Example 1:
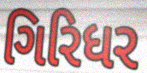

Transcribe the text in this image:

ગિરિધર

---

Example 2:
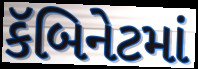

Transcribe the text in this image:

કૅબિનેટમાં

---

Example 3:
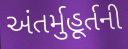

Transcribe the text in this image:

અંતર્મુહૂર્તની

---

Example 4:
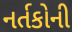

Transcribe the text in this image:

નર્તકોની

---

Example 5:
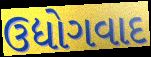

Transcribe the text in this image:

ઉદ્યોગવાદ